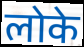
लोके